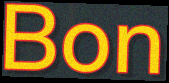
Bon